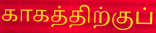
காகத்திற்குப்